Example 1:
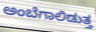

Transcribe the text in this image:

ಅಂಬೆಗಾಲಿಡುತ್ತ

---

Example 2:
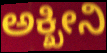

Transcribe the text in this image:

ಅಕ್ಖೀನಿ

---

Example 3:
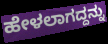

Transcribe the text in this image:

ಹೇಳಲಾಗದ್ದನ್ನು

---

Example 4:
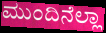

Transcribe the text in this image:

ಮುಂದಿನೆಲ್ಲಾ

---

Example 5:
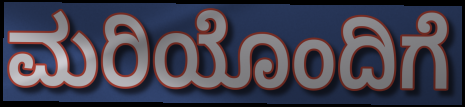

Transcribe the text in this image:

ಮರಿಯೊಂದಿಗೆ